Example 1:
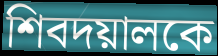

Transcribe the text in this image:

শিবদয়ালকে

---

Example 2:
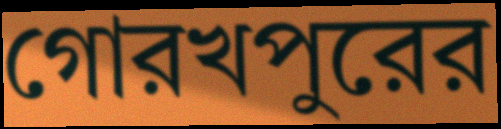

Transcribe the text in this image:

গোরখপুরের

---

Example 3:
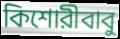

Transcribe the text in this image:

কিশোরীবাবু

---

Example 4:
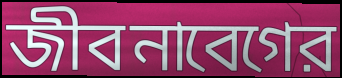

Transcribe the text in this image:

জীবনাবেগের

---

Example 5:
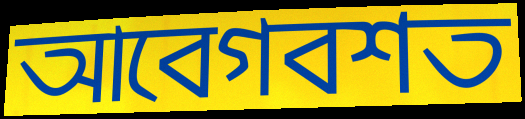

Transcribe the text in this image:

আবেগবশত